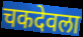
चकदेवला